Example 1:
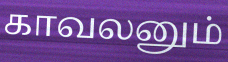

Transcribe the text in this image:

காவலனும்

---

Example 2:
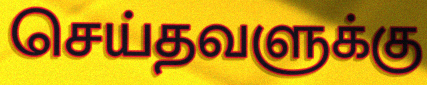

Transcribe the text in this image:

செய்தவளுக்கு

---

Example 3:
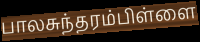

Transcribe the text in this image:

பாலசுந்தரம்பிள்ளை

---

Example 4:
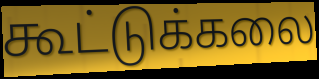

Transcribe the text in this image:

கூட்டுக்கலை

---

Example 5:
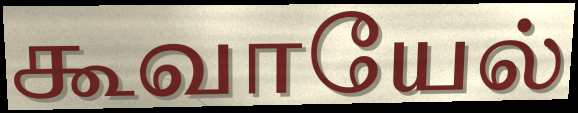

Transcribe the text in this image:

கூவாயேல்